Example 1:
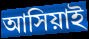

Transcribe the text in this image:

আসিয়াই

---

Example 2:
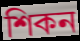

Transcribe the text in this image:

শিকন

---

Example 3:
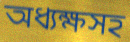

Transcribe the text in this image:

অধ্যক্ষসহ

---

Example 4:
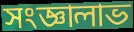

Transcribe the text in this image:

সংজ্ঞালাভ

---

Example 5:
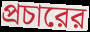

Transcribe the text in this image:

প্রচারের